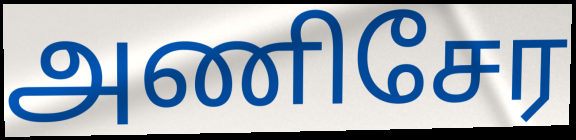
அணிசேர